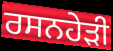
ਰਸਨਹੇੜੀ